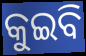
କୁଇବି